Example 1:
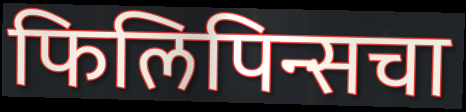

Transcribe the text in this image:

फिलिपिन्सचा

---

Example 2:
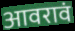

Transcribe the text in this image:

आवरावं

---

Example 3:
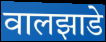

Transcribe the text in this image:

वालझाडे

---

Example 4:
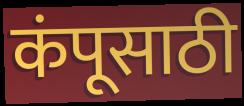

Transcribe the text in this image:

कंपूसाठी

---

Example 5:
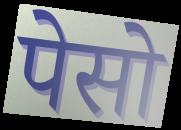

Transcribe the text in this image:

पेसो